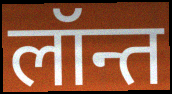
लॉन्त